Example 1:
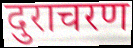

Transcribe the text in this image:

दुराचरण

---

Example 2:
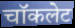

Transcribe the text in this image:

चॉकलेट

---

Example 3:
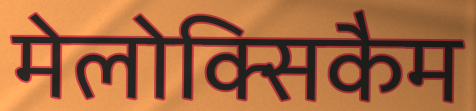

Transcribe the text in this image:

मेलोक्सिकैम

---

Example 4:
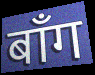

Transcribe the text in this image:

बाँग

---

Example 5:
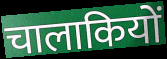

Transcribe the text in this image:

चालाकियों